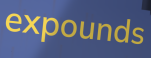
expounds